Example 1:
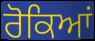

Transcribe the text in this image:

ਰੋਕਿਆਂ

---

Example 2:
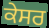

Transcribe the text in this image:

ਕੇਸਰ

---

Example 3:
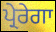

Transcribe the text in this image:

ਪ੍ਰੇਰੇਗਾ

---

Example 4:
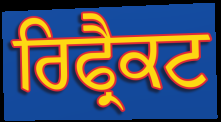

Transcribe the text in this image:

ਰਿਫ੍ਰੈਕਟ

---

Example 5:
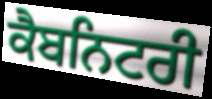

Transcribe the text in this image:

ਕੈਬਨਿਟਰੀ